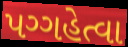
પગ્ગહેત્વા